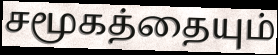
சமூகத்தையும்